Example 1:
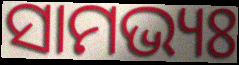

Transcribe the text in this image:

ସାମଭ୍ୟଃ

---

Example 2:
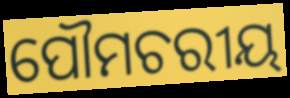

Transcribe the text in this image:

ପୌମଚରୀୟ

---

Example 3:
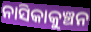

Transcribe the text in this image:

ନାସିକାକୁଞ୍ଚନ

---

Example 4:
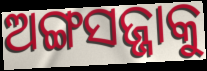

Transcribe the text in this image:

ଅଙ୍ଗସଜ୍ଜାକୁ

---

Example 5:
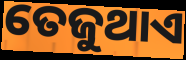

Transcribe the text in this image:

ତେଜୁଥାଏ